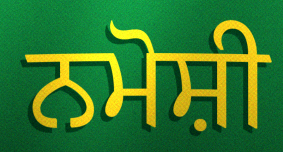
ਨਮੋਸ਼ੀ